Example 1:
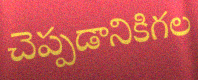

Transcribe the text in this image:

చెప్పడానికిగల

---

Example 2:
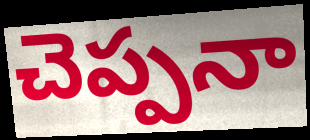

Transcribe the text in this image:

చెప్పనా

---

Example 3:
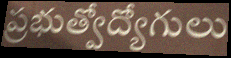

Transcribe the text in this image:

ప్రభుత్వోద్యోగులు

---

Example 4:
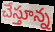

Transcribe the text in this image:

చేస్తూన్న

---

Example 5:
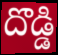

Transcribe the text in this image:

దొడ్డి